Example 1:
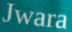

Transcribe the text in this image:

Jwara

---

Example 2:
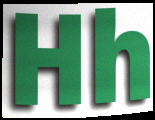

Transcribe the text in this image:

Hh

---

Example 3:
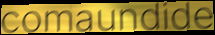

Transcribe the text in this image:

comaundide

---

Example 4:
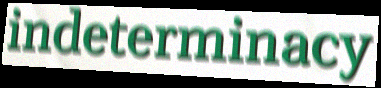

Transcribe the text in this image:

indeterminacy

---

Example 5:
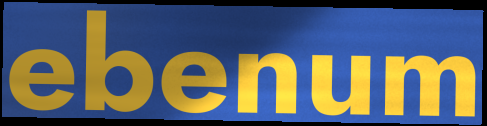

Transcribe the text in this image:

ebenum